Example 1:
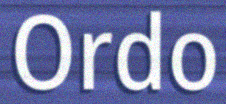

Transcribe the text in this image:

Ordo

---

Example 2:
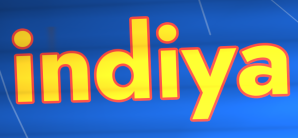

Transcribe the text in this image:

indiya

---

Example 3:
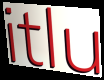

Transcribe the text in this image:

itlu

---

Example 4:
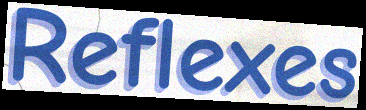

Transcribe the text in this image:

Reflexes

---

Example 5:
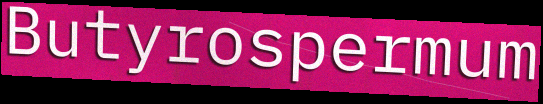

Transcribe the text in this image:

Butyrospermum